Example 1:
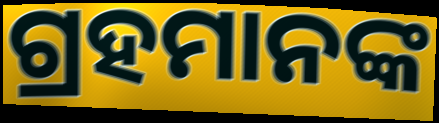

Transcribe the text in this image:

ଗ୍ରହମାନଙ୍କ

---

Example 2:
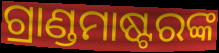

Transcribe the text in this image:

ଗ୍ରାଣ୍ଡମାଷ୍ଟରଙ୍କ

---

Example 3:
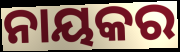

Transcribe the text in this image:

ନାୟକର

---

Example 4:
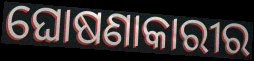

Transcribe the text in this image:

ଘୋଷଣାକାରୀର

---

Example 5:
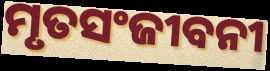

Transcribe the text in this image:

ମୃତସଂଜୀବନୀ